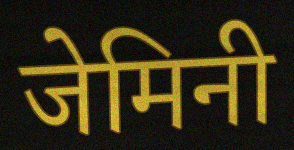
जेमिनी